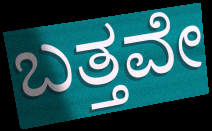
ಬತ್ತವೇ